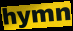
hymn